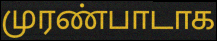
முரண்பாடாக